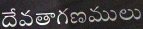
దేవతాగణములు